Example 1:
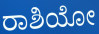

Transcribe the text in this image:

ರಾಶಿಯೋ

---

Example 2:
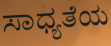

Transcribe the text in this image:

ಸಾಧ್ಯತೆಯ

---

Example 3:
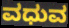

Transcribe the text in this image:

ವಧುವ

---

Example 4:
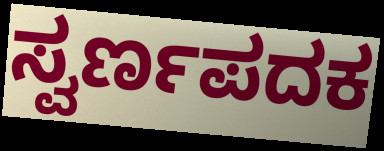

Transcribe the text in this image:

ಸ್ವರ್ಣಪದಕ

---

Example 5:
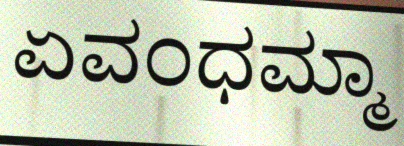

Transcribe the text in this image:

ಏವಂಧಮ್ಮಾ